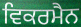
ਵਿਕਰਮੈਨ